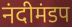
नंदीमंडप